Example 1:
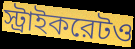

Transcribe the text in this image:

স্ট্রাইকরেটও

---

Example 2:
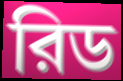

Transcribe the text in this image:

রিড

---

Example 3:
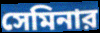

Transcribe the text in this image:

সেমিনার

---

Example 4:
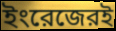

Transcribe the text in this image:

ইংরেজেরই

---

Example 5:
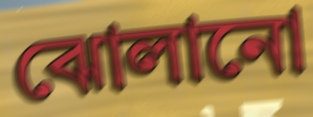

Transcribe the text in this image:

ঝোলানো